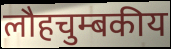
लौहचुम्बकीय